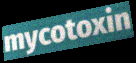
mycotoxin